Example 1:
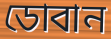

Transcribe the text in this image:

ডোবান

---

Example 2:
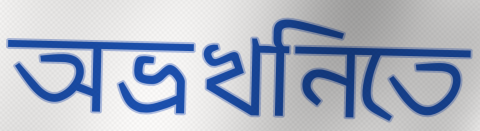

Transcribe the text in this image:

অভ্রখনিতে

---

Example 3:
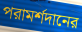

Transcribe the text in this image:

পরামর্শদানের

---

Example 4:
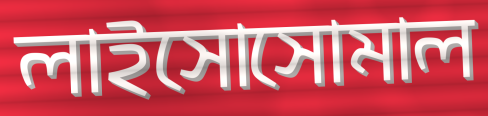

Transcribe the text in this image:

লাইসোসোমাল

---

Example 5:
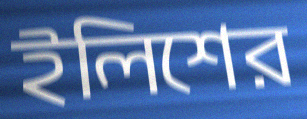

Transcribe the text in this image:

ইলিশের